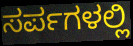
ಸರ್ಪಗಳಲ್ಲಿ